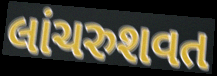
લાંચરુશવત